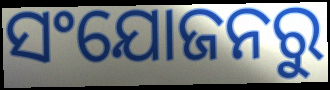
ସଂଯୋଜନରୁ